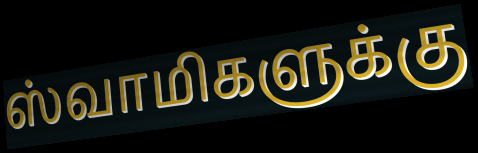
ஸ்வாமிகளுக்கு